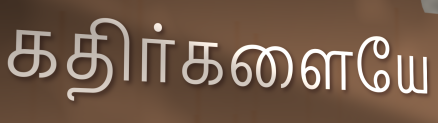
கதிர்களையே